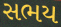
સભય